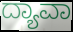
ದ್ಯಾವಾ